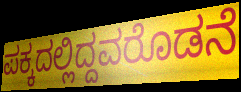
ಪಕ್ಕದಲ್ಲಿದ್ದವರೊಡನೆ